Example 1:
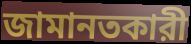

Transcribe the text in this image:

জামানতকারী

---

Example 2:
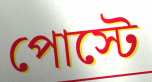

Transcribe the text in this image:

পোস্টে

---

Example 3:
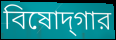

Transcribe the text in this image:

বিষোদ্‌গার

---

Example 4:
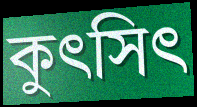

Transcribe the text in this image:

কুৎসিৎ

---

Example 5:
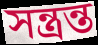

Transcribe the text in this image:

সন্ত্রন্ত